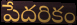
పేదరికం